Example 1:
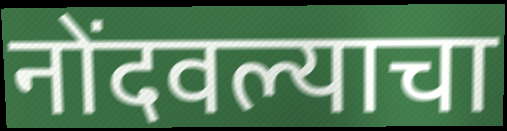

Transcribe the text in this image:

नोंदवल्याचा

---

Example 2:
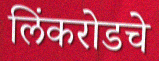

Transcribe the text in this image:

लिंकरोडचे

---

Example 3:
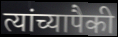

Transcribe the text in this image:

त्यांच्यापैकी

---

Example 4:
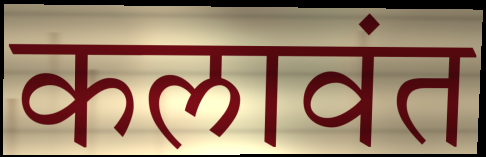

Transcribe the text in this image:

कलावंत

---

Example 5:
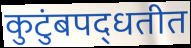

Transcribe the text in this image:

कुटुंबपद्धतीत